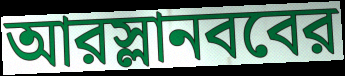
আরস্লানববের